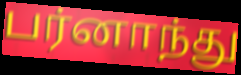
பர்னாந்து